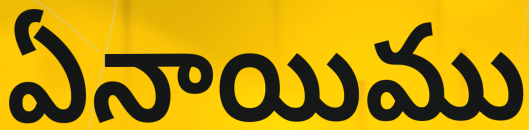
ఏనాయిము